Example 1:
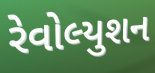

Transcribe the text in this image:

રેવોલ્યુશન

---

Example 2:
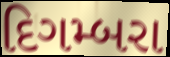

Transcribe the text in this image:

દિગમ્બરા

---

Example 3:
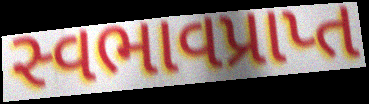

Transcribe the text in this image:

સ્વભાવપ્રાપ્ત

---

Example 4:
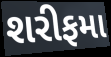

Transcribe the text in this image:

શરીફમા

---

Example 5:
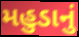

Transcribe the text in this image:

મહુડાનું